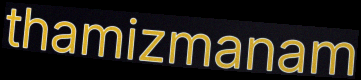
thamizmanam